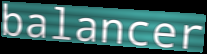
balancer